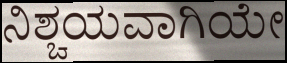
ನಿಶ್ಚಯವಾಗಿಯೇ